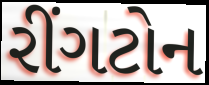
રીંગટોન